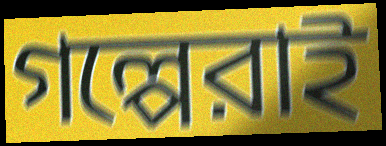
গল্পেরাই